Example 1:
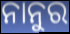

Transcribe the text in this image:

ନାନୁର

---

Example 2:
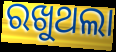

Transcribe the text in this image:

ରଖୁଥଲା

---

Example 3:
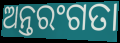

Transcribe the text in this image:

ଅନ୍ତରଂଗତା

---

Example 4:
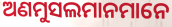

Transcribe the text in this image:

ଅଣମୁସଲମାନମାନେ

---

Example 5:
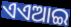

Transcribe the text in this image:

ଏଏଆଇ